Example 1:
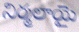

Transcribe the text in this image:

నిర్మలాయై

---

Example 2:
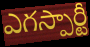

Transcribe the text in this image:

ఎగస్పార్టీ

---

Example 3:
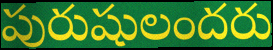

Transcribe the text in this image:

పురుషులందరు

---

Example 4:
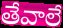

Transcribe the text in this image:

తేవాలే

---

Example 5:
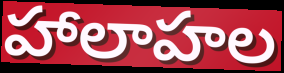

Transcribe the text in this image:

హాలాహల